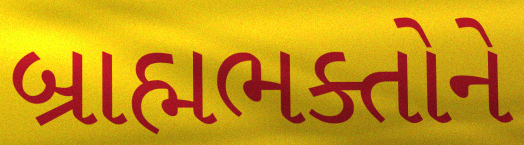
બ્રાહ્મભક્તોને